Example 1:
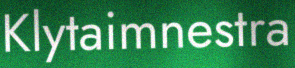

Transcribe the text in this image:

Klytaimnestra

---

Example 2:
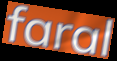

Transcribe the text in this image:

faral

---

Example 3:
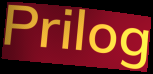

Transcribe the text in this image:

Prilog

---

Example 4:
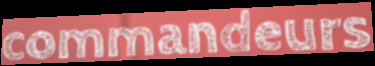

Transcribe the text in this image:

commandeurs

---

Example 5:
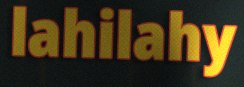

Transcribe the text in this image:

lahilahy